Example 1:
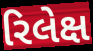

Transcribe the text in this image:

રિલેક્ષ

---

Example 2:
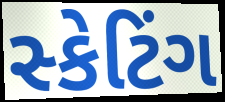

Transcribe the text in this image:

સ્કેટિંગ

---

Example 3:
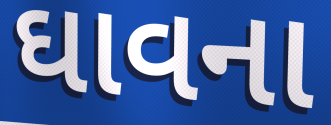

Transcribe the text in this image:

ઘાવના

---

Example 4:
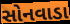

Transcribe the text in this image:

સોનવાડા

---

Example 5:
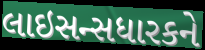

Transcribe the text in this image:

લાઇસન્સધારકને